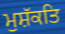
ਮੁਸ਼ੱਕਤਿ